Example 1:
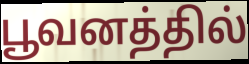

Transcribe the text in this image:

பூவனத்தில்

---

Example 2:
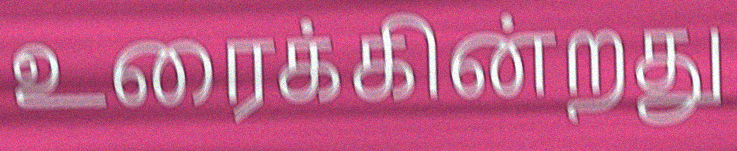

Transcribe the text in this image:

உரைக்கின்றது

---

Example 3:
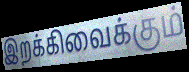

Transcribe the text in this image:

இறக்கிவைக்கும்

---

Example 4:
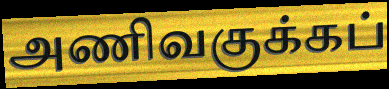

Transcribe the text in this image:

அணிவகுக்கப்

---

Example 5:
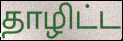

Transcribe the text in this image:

தாழிட்ட